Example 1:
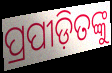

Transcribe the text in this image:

ପ୍ରପୀଡ଼ିତଙ୍କୁ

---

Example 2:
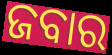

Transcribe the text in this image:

ଜବାର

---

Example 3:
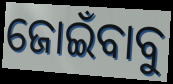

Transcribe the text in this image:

ଜୋଇଁବାବୁ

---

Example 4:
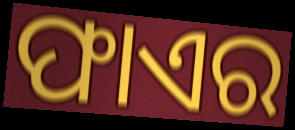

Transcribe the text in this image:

ଫାଏର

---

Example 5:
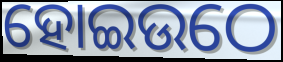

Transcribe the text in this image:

ହୋଇଉଠେ